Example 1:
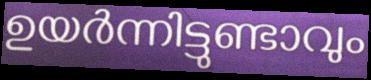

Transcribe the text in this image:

ഉയർന്നിട്ടുണ്ടാവും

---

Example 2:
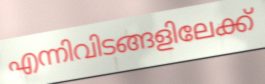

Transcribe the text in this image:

എന്നിവിടങ്ങളിലേക്ക്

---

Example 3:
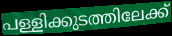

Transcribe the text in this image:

പള്ളിക്കുടത്തിലേക്ക്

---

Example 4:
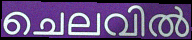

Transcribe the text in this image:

ചെലവിൽ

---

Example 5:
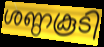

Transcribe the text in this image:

ശണ്ഠകൂടി